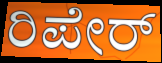
ರಿಪೇರ್